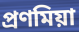
প্রণমিয়া